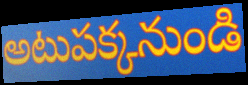
అటుపక్కనుండి